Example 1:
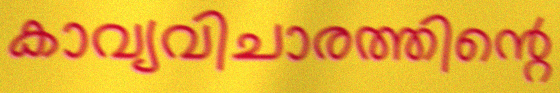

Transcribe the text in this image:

കാവ്യവിചാരത്തിന്റെ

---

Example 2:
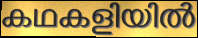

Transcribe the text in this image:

കഥകളിയിൽ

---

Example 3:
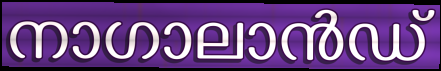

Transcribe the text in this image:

നാഗാലാൻഡ്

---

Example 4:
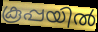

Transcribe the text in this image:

കൂപ്പയിൽ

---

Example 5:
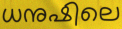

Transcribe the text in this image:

ധനുഷിലെ